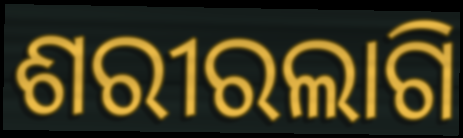
ଶରୀରଲାଗି